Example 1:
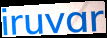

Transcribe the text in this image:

iruvar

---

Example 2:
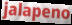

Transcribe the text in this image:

jalapeno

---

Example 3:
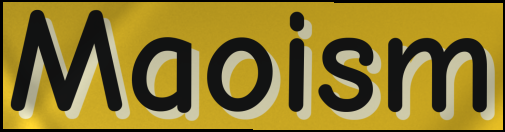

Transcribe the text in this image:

Maoism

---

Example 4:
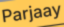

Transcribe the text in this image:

Parjaay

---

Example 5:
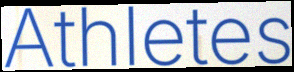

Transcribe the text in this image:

Athletes